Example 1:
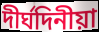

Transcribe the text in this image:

দীৰ্ঘদিনীয়া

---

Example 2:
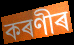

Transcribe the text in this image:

কৰণীৰ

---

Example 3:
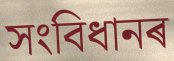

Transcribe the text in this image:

সংবিধানৰ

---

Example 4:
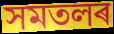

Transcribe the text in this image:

সমতলৰ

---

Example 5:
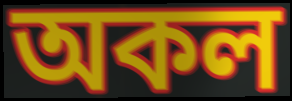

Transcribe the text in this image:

অকল